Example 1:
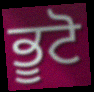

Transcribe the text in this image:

ਭੂਟੋ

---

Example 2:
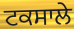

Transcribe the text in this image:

ਟਕਸਾਲੇ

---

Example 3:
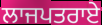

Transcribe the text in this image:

ਲਾਜਪਤਰਾਏ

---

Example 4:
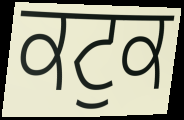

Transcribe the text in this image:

ਕਟੁਕ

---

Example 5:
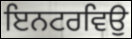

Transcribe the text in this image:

ਇਨਟਰਵਿਉ